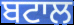
ਬਟਾਲ